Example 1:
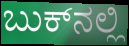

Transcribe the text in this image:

ಬುಕ್‌ನಲ್ಲಿ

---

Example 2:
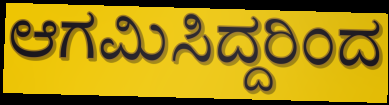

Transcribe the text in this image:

ಆಗಮಿಸಿದ್ದರಿಂದ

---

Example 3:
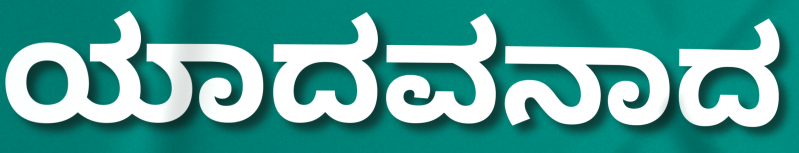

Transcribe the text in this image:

ಯಾದವನಾದ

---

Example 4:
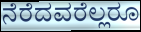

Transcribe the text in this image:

ನೆರೆದವರೆಲ್ಲರೂ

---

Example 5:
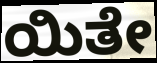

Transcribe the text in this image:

ಯಿತೇ